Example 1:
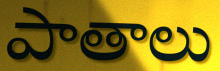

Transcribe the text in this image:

పాతాలు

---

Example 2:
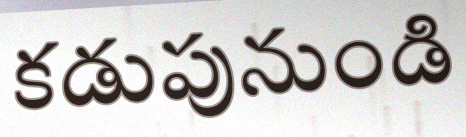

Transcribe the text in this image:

కడుపునుండి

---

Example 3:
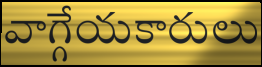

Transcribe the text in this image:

వాగ్గేయకారులు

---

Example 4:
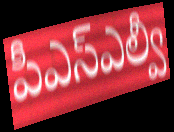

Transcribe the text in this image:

పీఎస్ఎల్వీ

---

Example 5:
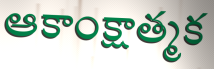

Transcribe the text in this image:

ఆకాంక్షాత్మక